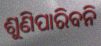
ଶୁଣିପାରିବନି